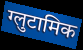
ग्लुटामिक